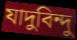
যাদুবিন্দু